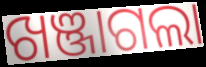
ଖଞ୍ଜାଗଲା